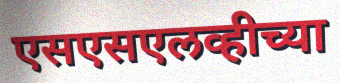
एसएसएलव्हीच्या